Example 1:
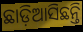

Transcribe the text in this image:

ଛାଡ଼ିଆସିଛନ୍ତି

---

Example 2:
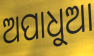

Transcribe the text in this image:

ଅପାଧୁଆ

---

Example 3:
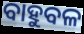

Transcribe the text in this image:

ବାହୁବଳ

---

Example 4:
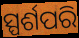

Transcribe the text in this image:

ସ୍ପର୍ଶପରି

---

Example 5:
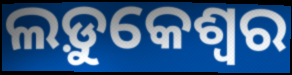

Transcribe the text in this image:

ଲଡ଼ୁକେଶ୍ୱର